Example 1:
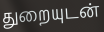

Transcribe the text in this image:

துறையுடன்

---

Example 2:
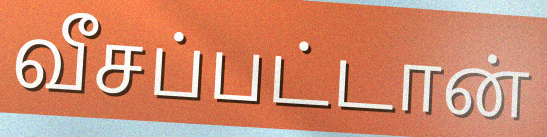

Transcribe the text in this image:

வீசப்பட்டான்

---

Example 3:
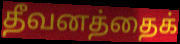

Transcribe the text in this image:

தீவனத்தைக்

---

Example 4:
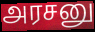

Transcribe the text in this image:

அரசனு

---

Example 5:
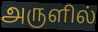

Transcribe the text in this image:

அருளில்